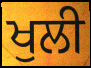
ਖੁਲੀ